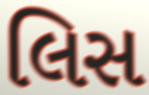
લિસ